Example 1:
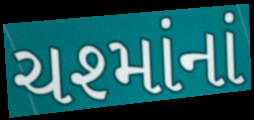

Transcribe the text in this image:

ચશ્માંનાં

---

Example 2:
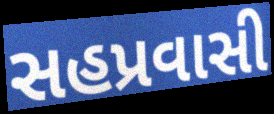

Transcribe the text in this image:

સહપ્રવાસી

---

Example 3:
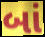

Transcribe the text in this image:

બાં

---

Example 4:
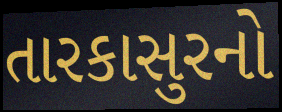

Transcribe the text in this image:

તારકાસુરનો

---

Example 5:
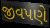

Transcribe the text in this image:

જીવપણે